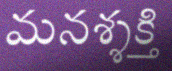
మనశ్శక్తి